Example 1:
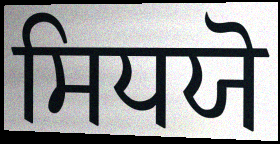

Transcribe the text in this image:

ਸਿਧਯੋ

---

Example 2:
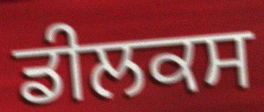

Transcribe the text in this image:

ਡੀਲਕਸ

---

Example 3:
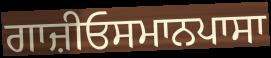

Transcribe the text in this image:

ਗਾਜ਼ੀਓਸਮਾਨਪਾਸਾ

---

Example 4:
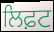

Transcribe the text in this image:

ਲਿਫ਼ਟ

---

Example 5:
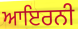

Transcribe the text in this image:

ਆਇਰਨੀ